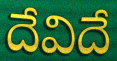
దేవిదే